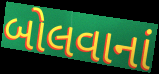
બોલવાનાં